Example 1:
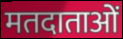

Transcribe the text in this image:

मतदाताओें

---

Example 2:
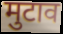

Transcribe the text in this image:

मुटाव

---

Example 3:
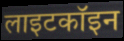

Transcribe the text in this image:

लाइटकॉइन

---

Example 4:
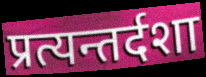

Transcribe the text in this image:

प्रत्यन्तर्दशा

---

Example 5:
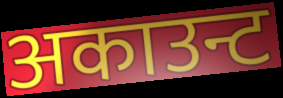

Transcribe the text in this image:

अकाउन्ट